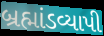
બ્રહ્માંડવ્યાપી